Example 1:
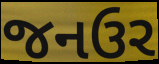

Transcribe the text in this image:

જનઉર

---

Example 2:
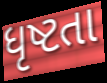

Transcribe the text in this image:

ધૃષ્ટતા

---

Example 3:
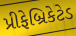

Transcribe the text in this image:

પ્રીફેબ્રિકેટેડ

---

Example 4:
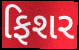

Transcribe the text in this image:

ફિશર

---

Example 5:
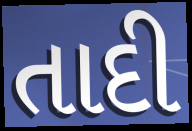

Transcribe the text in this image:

તાદી